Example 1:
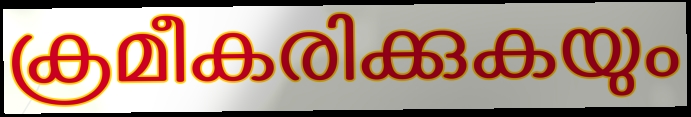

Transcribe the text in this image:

ക്രമീകരിക്കുകയും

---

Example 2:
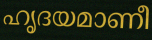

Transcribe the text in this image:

ഹൃദയമാണീ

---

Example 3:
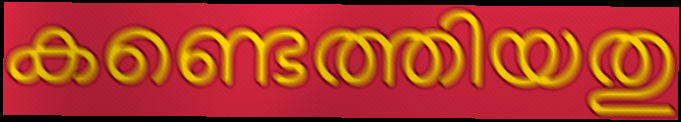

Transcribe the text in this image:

കണ്ടെത്തിയതു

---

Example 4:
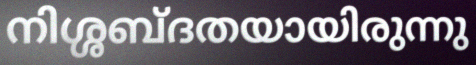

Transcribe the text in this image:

നിശ്ശബ്ദതയായിരുന്നു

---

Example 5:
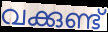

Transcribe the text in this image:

വക്കുണ്ട്